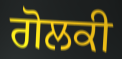
ਗੋਲਕੀ